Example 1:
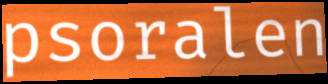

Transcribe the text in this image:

psoralen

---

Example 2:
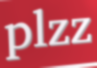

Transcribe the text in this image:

plzz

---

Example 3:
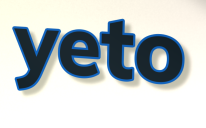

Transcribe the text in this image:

yeto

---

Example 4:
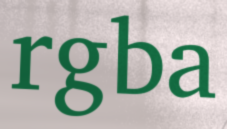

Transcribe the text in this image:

rgba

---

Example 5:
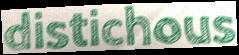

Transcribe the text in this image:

distichous